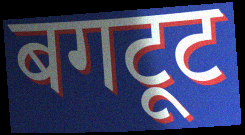
बगटूट